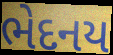
ભેદનય